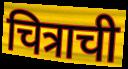
चित्राची